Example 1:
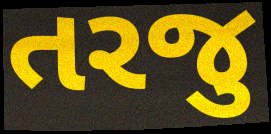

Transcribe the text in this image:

તરજુ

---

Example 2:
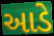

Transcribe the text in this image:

આડે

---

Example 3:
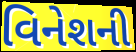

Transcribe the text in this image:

વિનેશની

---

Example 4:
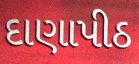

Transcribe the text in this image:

દાણાપીઠ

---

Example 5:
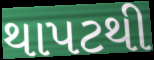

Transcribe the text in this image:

થાપટથી